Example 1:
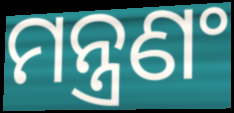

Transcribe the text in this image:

ମନ୍ତ୍ରଣଂ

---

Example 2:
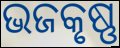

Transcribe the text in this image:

ଭଜକୃଷ୍ଣ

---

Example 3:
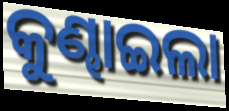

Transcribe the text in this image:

କୁଣ୍ଢାଇଲା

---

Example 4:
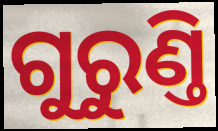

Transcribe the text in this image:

ଗୁରୁଣ୍ତି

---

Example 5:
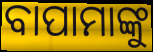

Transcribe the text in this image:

ବାପାମାଙ୍କୁ